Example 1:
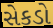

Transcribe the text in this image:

સેકડો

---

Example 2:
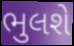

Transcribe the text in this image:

ભુલશે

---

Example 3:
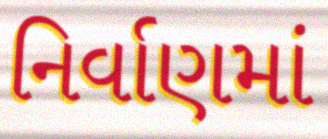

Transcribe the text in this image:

નિર્વાણમાં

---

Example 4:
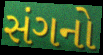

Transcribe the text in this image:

સંગનો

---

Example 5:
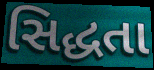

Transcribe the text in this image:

સિદ્ધતા